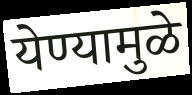
येण्यामुळे